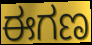
ಈಗಣ